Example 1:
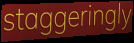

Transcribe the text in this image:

staggeringly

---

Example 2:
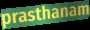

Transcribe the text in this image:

prasthanam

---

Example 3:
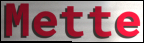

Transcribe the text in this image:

Mette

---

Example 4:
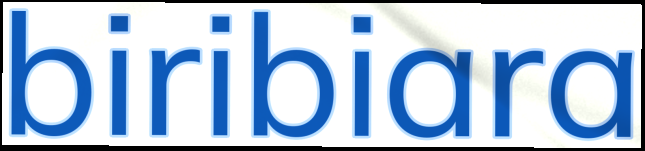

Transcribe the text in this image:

biribiara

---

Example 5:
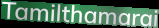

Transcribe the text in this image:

Tamilthamarai